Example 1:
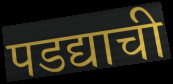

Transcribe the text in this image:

पडद्याची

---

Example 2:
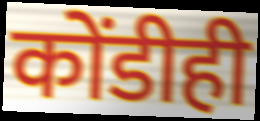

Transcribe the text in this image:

कोंडीही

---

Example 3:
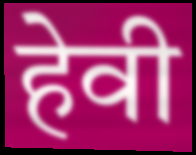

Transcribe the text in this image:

हेवी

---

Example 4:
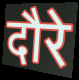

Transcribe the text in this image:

दौरे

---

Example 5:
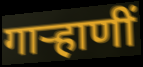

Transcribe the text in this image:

गाऱ्हाणीं